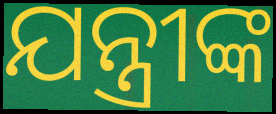
ଯନ୍ତ୍ରୀଙ୍କ